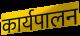
कार्यपालन